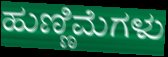
ಹುಣ್ಣಿಮೆಗಳು